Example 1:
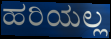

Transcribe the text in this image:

ಹರಿಯಲ್ಲ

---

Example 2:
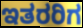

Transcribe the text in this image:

ಇತರರಿಗ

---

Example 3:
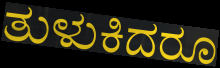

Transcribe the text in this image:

ತುಳುಕಿದರೂ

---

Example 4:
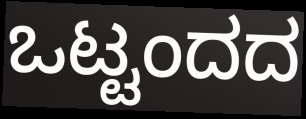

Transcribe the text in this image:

ಒಟ್ಟಂದದ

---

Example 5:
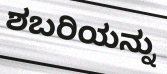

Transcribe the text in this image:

ಶಬರಿಯನ್ನು